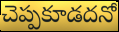
చెప్పకూడదనో